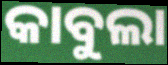
କାବୁଲା